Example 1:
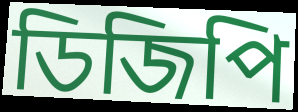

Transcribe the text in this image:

ডিজিপি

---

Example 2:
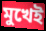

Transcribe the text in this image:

মুখেই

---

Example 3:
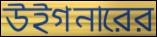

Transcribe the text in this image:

উইগনারের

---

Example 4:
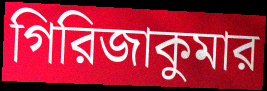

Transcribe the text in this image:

গিরিজাকুমার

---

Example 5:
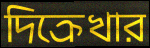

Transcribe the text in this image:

দিক্রেখার